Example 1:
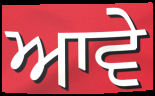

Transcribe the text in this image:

ਆਵੇ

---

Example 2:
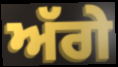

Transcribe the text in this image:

ਅੱਗੇ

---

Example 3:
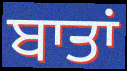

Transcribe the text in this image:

ਬਾਤਾਂ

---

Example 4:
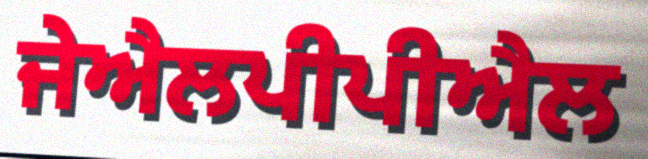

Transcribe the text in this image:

ਜੇਐਲਪੀਪੀਐਲ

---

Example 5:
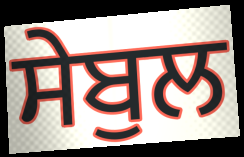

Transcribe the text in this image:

ਸੇਬੁਲ